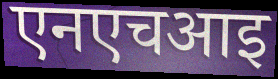
एनएचआइ